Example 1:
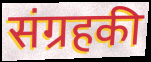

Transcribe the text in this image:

संग्रहकी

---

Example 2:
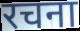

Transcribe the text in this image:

रचना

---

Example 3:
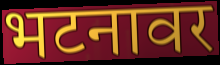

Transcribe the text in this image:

भटनावर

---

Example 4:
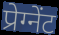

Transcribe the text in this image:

प्रेग्नेंट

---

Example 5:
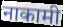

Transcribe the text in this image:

नाकामी